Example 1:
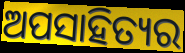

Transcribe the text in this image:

ଅପସାହିତ୍ୟର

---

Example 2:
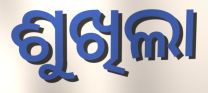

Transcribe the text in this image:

ଶୁଖିଲା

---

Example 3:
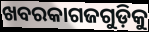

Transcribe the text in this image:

ଖବରକାଗଜଗୁଡ଼ିକୁ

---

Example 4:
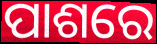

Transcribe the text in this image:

ପାଶରେ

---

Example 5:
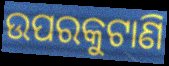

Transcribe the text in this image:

ଉପରକୁଟାଣି